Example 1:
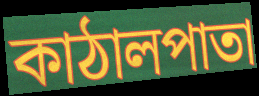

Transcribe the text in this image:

কাঠালপাতা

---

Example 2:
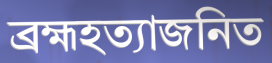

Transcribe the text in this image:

ব্রহ্মহত্যাজনিত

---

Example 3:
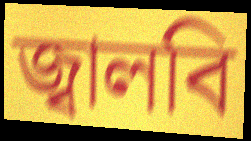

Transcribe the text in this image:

জ্বালবি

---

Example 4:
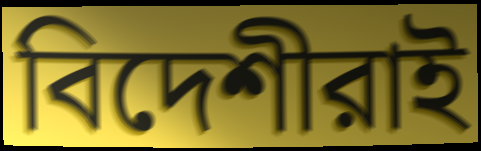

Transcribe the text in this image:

বিদেশীরাই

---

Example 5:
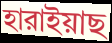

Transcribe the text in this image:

হারাইয়াছ